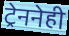
ट्रेननेही